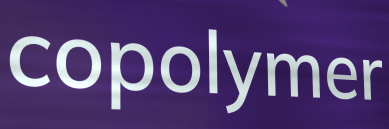
copolymer